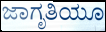
ಜಾಗೃತಿಯೂ